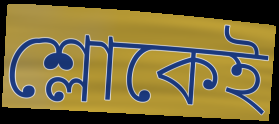
শ্লোকেই